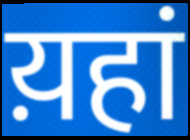
य़हां